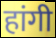
हांगी